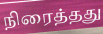
நிரைத்தது